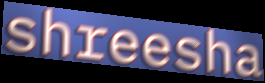
shreesha